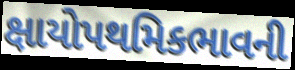
ક્ષાયોપથમિકભાવની